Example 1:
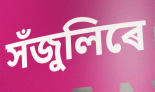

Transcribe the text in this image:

সঁজুলিৰে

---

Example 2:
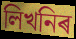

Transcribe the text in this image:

লিখনিৰ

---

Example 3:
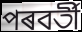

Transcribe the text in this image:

পৰবৰ্তী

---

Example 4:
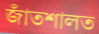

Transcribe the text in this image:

জাঁতশালত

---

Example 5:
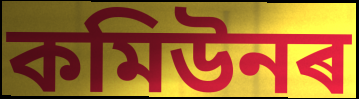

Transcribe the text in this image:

কমিউনৰ